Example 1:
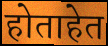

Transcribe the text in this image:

होताहेत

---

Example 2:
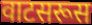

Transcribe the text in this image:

वाटसरूस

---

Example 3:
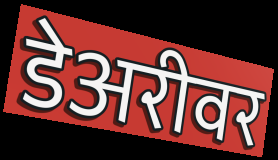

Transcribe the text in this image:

डेअरीवर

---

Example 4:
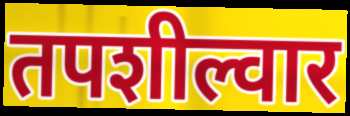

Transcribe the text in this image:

तपशील्वार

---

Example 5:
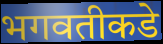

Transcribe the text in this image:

भगवतीकडे